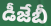
డీజేబీ